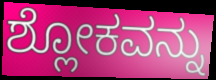
ಶ್ಲೋಕವನ್ನು